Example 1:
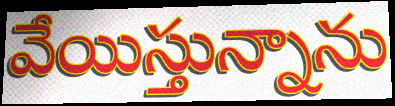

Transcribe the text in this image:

వేయిస్తున్నాను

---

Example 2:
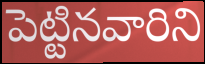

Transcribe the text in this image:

పెట్టినవారిని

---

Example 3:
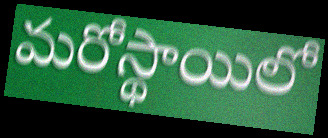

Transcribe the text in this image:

మరోస్థాయిలో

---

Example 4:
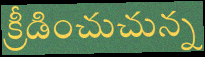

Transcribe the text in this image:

క్రీడించుచున్న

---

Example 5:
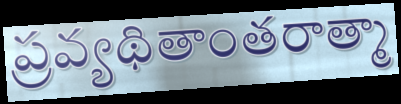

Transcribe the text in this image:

ప్రవ్యథితాంతరాత్మా